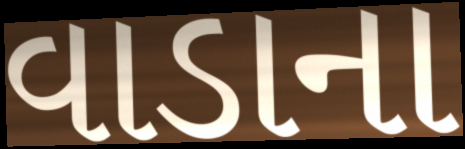
વાડાના